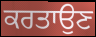
ਕਰਤਾਉਣ